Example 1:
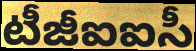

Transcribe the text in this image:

టీజీఐఐసీ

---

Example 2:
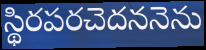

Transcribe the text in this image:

స్థిరపరచెదననెను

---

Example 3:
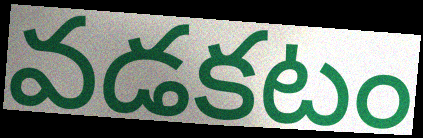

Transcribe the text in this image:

వడకటం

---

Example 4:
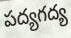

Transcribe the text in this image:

పద్యగద్య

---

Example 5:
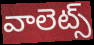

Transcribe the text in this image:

వాలెట్స్